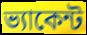
ভ্যাকেন্ট